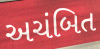
અચંબિત